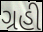
ગ્રહી